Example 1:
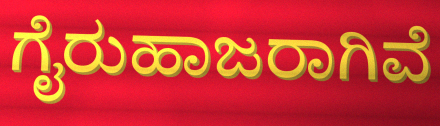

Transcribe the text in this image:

ಗೈರುಹಾಜರಾಗಿವೆ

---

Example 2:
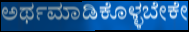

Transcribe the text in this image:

ಅರ್ಥಮಾಡಿಕೊಳ್ಳಬೇಕೇ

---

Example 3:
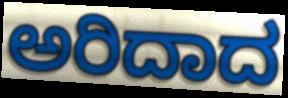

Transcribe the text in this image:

ಅರಿದಾದ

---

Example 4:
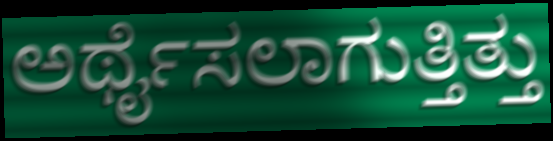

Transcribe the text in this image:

ಅರ್ಥೈಸಲಾಗುತ್ತಿತ್ತು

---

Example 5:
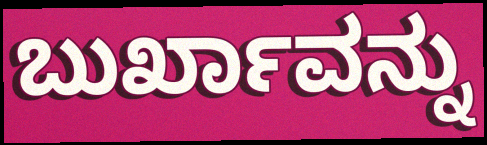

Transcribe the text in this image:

ಬುರ್ಖಾವನ್ನು